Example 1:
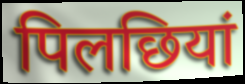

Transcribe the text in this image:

पिलछियां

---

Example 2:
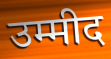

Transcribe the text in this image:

उम्‍मीद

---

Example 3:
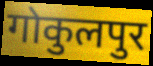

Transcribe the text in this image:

गोकुलपुर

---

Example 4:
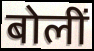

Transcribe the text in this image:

बोलीं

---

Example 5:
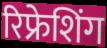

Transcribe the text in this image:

रिफ्रेशिंग